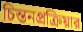
চিন্তনপ্রক্রিয়ার